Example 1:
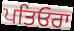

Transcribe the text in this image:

ਪਤਿਓਰਾ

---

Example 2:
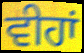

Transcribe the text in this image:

ਵੀਹਾਂ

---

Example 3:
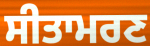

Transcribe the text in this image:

ਸੀਤਾਮਰਣ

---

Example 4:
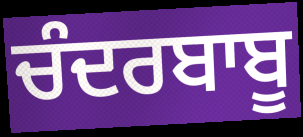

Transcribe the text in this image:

ਚੰਦਰਬਾਬੂ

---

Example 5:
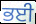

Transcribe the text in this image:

ਭਈ